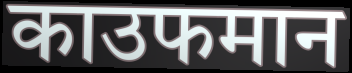
काउफमान